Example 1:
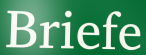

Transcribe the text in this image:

Briefe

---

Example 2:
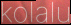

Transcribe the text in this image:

kolalu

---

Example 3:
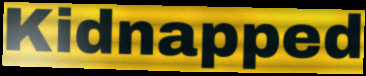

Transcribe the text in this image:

Kidnapped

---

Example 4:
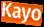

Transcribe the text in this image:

Kayo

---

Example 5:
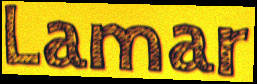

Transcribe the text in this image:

Lamar